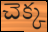
చెక్క